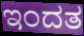
ಇಂದತ